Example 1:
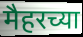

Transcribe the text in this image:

मैहरच्या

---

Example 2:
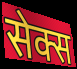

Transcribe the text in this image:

सेक्स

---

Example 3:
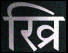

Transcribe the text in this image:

ख्रि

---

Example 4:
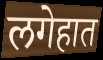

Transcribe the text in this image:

लगेहात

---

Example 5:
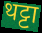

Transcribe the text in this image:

थट्टा